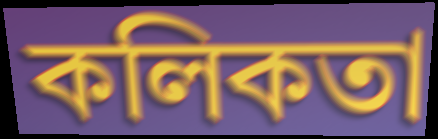
কলিকতা